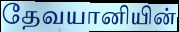
தேவயானியின்